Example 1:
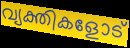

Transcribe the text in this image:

വ്യക്തികളോട്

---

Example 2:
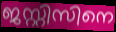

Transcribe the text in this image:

ജസ്റ്റിസിനെ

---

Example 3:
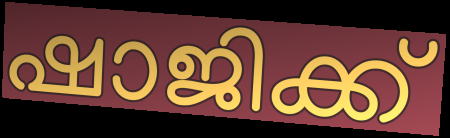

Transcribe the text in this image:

ഷാജിക്ക്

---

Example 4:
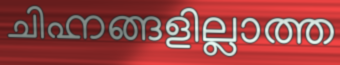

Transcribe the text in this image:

ചിഹ്നങ്ങളില്ലാത്ത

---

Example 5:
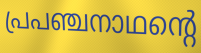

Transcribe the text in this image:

പ്രപഞ്ചനാഥന്റെ